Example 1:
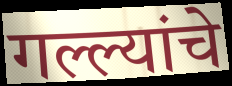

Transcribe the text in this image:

गल्ल्यांचे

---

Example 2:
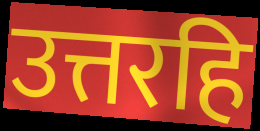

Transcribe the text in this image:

उत्तरहि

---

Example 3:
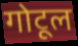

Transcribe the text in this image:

गोटूल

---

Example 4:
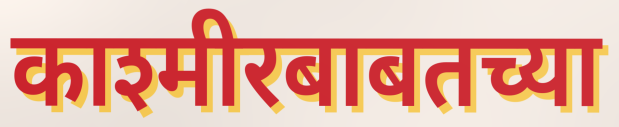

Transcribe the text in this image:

काश्मीरबाबतच्या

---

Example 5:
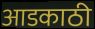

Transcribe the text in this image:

आडकाठी